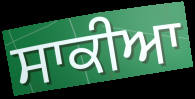
ਸਾਕੀਆ